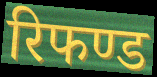
रिफण्ड